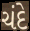
ચંદે